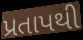
પ્રતાપથી